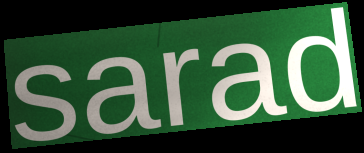
sarad